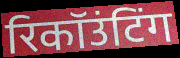
रिकॉउंटिंग